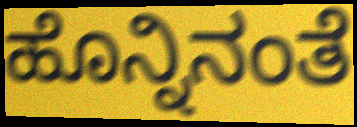
ಹೊನ್ನಿನಂತೆ